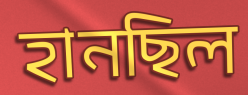
হানছিল